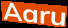
Aaru